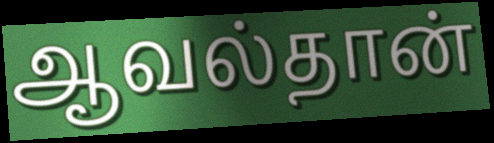
ஆவல்தான்